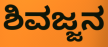
ಶಿವಜ್ಜನ